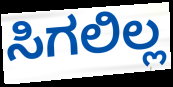
ಸಿಗಲಿಲ್ಲ